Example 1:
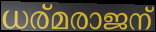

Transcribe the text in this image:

ധര്മരാജന്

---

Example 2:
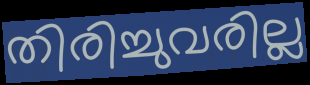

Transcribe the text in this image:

തിരിച്ചുവരില്ല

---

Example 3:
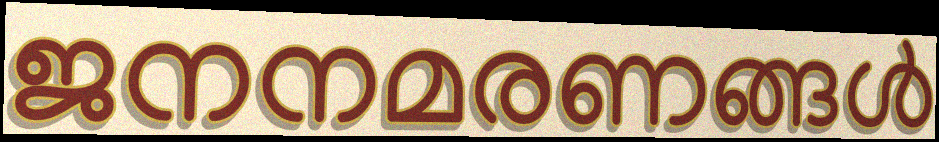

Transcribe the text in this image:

ജനനമരണങ്ങൾ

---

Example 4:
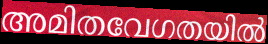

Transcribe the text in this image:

അമിതവേഗതയിൽ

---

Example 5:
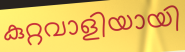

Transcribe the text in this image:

കുറ്റവാളിയായി